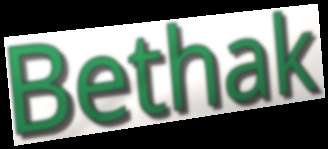
Bethak